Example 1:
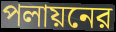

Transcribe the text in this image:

পলায়নের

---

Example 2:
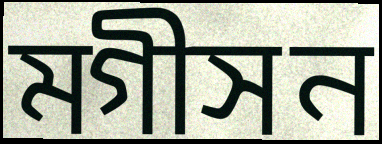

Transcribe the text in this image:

মগীসন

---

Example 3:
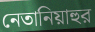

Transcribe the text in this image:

নেতানিয়াহুর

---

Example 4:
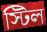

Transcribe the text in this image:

স্টিল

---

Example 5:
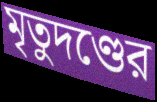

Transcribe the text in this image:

মৃতুদণ্ডের